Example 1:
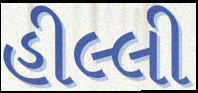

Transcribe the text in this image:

હીલ્લી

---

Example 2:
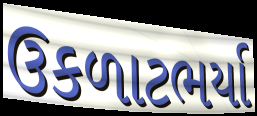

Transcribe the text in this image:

ઉકળાટભર્યા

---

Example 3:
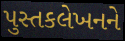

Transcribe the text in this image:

પુસ્તકલેખનને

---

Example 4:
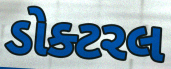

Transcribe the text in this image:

ડોક્ટરલ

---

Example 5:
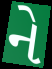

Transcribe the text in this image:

ને